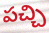
పచ్చి